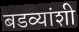
बडव्यांशी